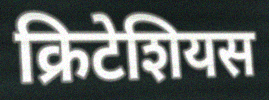
क्रिटेशियस